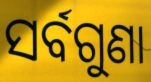
ସର୍ବଗୁଣା